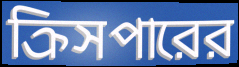
ক্রিসপারের